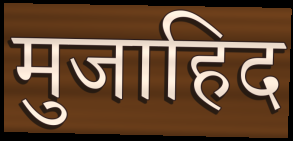
मुजाहिद